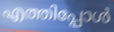
എത്തിപ്പോൾ